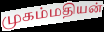
முகம்மதியன்